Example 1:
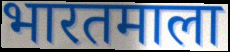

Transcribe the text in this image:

भारतमाला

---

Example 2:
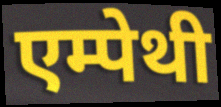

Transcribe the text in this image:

एम्पेथी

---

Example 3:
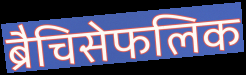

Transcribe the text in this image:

ब्रैचिसेफलिक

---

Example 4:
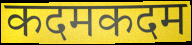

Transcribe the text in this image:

कदमकदम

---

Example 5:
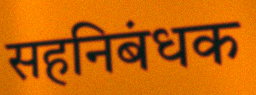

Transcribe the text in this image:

सहनिबंधक